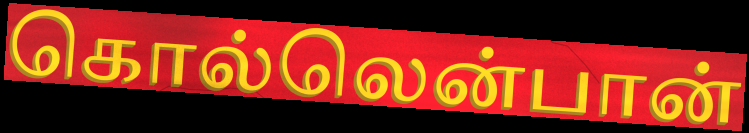
கொல்லென்பான்